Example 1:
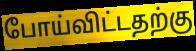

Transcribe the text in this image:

போய்விட்டதற்கு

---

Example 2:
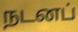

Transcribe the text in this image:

நடனப்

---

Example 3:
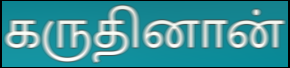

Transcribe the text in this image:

கருதினான்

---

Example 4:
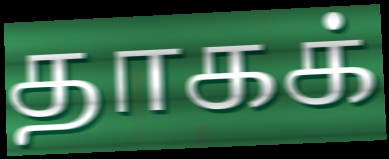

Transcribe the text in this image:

தாகக்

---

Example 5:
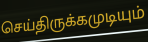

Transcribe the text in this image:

செய்திருக்கமுடியும்